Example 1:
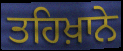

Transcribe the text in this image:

ਤਹਿਖ਼ਾਨੇ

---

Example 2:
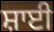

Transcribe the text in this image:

ਸ਼ਾਈ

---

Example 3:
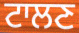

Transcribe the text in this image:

ਟਾਲਣ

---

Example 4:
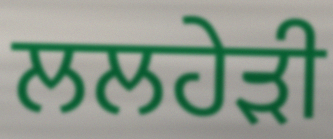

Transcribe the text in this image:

ਲਲਹੇੜੀ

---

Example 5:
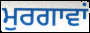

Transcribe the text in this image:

ਮੁਰਗਾਵਾਂ